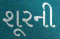
શૂરની